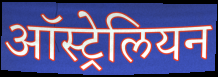
ऑस्ट्रेलियन